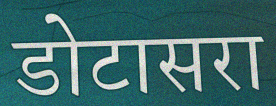
डोटासरा